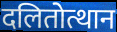
दलितोत्थान